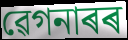
ৱেগনাৰৰ